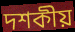
দশকীয়